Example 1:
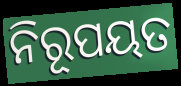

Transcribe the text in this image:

ନିରୂପୟତ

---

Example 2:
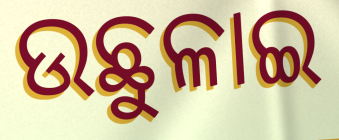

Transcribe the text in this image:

ଉଛୁଳାଇ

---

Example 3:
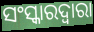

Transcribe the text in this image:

ସଂସ୍କାରଦ୍ୱାରା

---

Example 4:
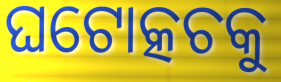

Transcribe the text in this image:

ଘଟୋତ୍କଚକୁ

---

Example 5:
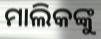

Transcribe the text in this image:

ମାଲିକଙ୍କୁ